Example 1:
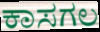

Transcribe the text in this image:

ಕಾಸಗಲ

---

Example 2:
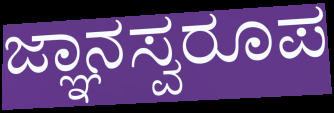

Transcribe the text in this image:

ಜ್ಞಾನಸ್ವರೂಪ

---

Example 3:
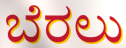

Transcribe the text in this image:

ಬೆರಲು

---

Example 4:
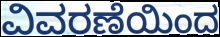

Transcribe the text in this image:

ವಿವರಣೆಯಿಂದ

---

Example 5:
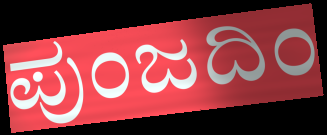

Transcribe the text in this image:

ಪುಂಜದಿಂ